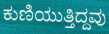
ಕುಣಿಯುತ್ತಿದ್ದವು